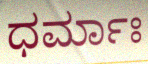
ಧರ್ಮಾಃ